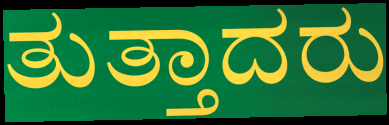
ತುತ್ತಾದರು